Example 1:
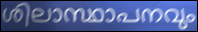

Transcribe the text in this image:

ശിലാസ്ഥാപനവും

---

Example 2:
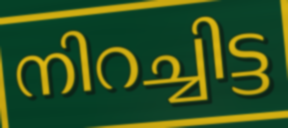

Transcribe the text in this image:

നിറച്ചിട്ട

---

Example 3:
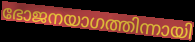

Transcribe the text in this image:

ഭോജനയാഗത്തിന്നായി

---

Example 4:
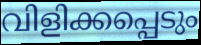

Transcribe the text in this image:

വിളിക്കപ്പെടും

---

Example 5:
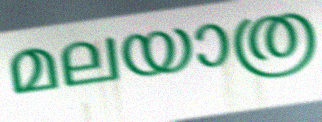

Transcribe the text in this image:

മലയാത്ര